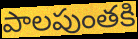
పాలపుంతకి